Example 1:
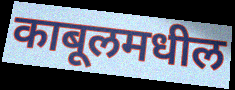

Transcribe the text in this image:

काबूलमधील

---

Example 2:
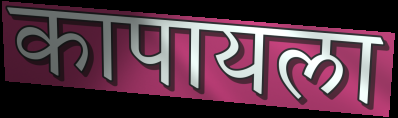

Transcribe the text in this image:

कापायला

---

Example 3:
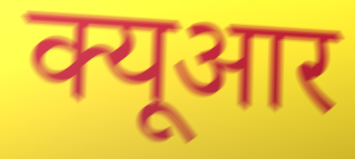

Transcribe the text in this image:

क्यूआर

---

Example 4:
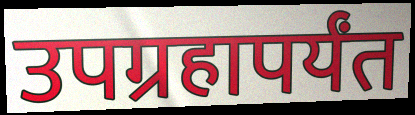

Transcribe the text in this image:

उपग्रहापर्यंत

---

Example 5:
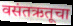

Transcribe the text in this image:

वसंतऋतूचा